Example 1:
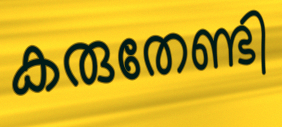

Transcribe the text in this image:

കരുതേണ്ടി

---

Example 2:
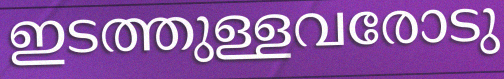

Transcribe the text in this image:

ഇടത്തുള്ളവരോടു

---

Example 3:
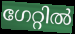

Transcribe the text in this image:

ഗേറ്റിൽ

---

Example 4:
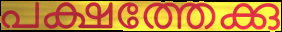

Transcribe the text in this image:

പക്ഷത്തേക്കു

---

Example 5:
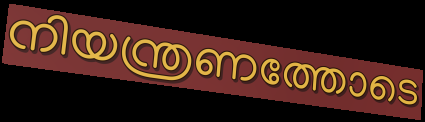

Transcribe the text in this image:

നിയന്ത്രണത്തോടെ